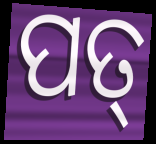
ପତ୍